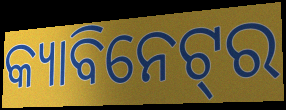
କ୍ୟାବିନେଟ୍‌ର